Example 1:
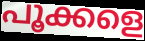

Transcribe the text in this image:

പൂക്കളെ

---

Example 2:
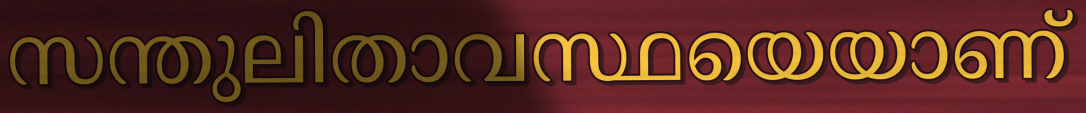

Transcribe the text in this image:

സന്തുലിതാവസ്ഥയെയാണ്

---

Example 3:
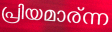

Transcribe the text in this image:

പ്രിയമാര്ന്ന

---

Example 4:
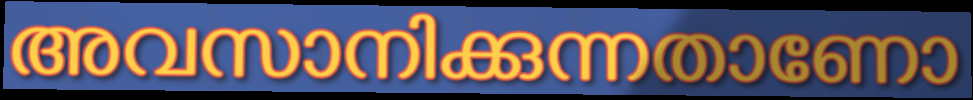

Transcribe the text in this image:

അവസാനിക്കുന്നതാണോ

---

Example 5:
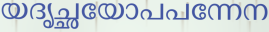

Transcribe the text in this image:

യദൃച്ഛയോപപന്നേന